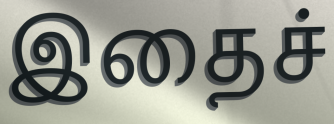
இதைச்